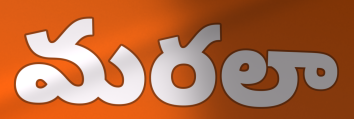
మరలా